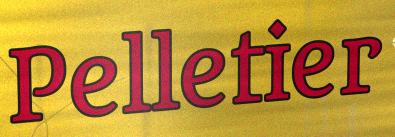
Pelletier